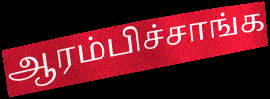
ஆரம்பிச்சாங்க